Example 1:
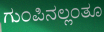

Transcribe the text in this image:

ಗುಂಪಿನಲ್ಲಂತೂ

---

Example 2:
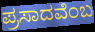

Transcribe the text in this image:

ಪ್ರಸಾದವೆಂಬ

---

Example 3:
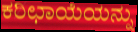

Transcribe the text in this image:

ಕರಿಛಾಯೆಯನ್ನು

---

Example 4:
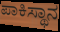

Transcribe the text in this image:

ಪಾಕಿಸ್ಥಾನ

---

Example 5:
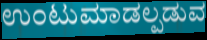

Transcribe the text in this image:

ಉಂಟುಮಾಡಲ್ಪಡುವ